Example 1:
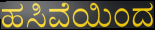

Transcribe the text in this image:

ಹಸಿವೆಯಿಂದ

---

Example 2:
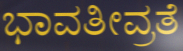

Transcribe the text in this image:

ಭಾವತೀವ್ರತೆ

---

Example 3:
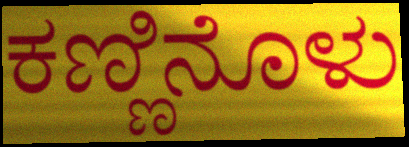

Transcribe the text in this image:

ಕಣ್ಣಿನೊಳು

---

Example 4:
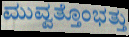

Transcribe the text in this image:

ಮುವ್ವತ್ತೊಂಭತ್ತು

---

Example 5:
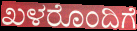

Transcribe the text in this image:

ಖಳರೊಂದಿಗೆ